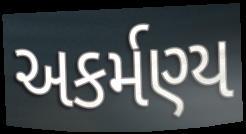
અકર્મણ્ય